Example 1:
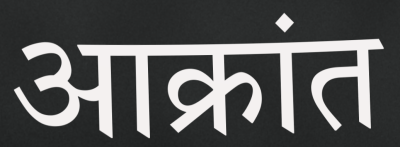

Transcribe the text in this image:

आक्रांत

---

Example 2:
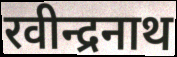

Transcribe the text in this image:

रवीन्द्रनाथ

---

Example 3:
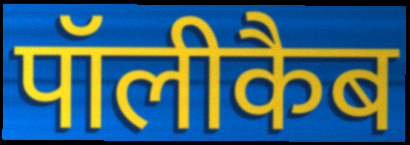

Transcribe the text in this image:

पॉलीकैब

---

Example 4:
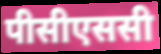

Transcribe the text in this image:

पीसीएससी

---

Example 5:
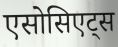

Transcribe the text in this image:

एसोसिएट्स